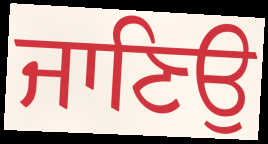
ਜਾਣਿਉ